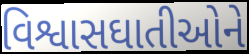
વિશ્વાસઘાતીઓને